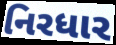
નિરધાર